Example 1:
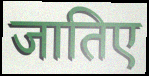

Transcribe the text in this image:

जातिए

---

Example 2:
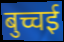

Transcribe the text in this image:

बुच्चई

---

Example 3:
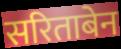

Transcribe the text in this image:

सरिताबेन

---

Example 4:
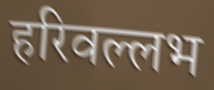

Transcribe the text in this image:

हरिवल्लभ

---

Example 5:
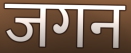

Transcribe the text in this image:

जगन